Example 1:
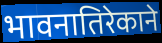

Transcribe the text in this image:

भावनातिरेकाने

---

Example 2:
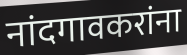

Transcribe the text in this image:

नांदगावकरांना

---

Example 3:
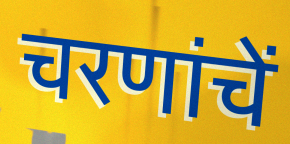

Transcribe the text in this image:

चरणांचें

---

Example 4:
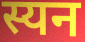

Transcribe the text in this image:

स्यन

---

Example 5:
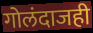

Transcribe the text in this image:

गोलंदाजही